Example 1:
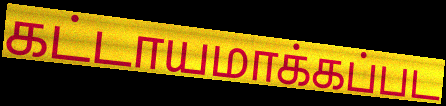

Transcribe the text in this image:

கட்டாயமாக்கப்பட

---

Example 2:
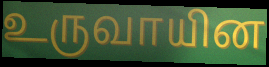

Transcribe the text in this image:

உருவாயின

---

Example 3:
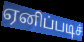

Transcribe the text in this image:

ஏனிப்படிச்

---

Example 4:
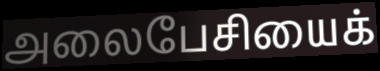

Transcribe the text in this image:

அலைபேசியைக்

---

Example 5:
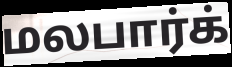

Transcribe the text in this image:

மலபார்க்